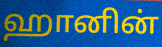
ஹானின்